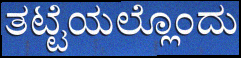
ತಟ್ಟೆಯಲ್ಲೊಂದು